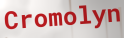
Cromolyn